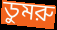
ডুমরু